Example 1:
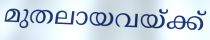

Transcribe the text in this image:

മുതലായവയ്ക്ക്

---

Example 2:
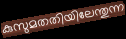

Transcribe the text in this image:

കുസുമതതിയിലേന്തുന്ന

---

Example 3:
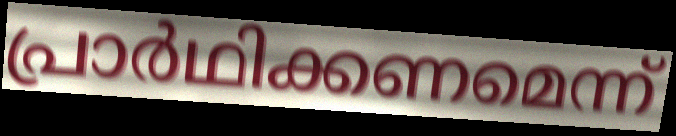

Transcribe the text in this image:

പ്രാർഥിക്കണമെന്ന്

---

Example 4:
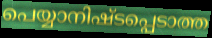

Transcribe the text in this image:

പെയ്യാനിഷ്ടപ്പെടാത്ത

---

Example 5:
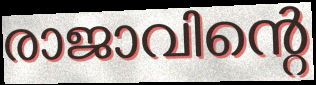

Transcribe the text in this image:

രാജാവിന്റെ